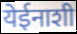
येईनाशी